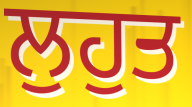
ਲੁਹੁਤ